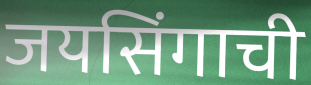
जयसिंगाची